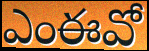
ఎంఈవో